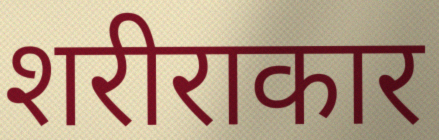
शरीराकार